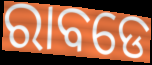
ରାବଡେ